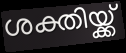
ശക്തിയ്ക്ക്